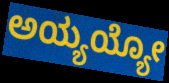
ಅಯ್ಯಯ್ಯೋ